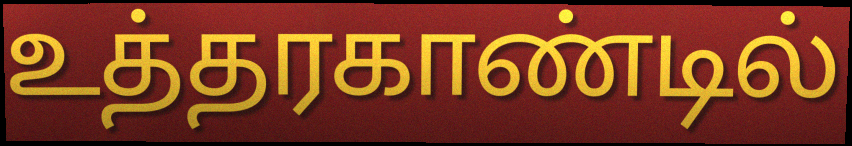
உத்தரகாண்டில்